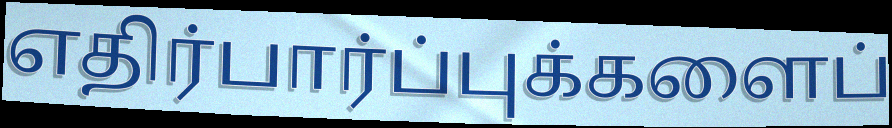
எதிர்பார்ப்புக்களைப்